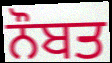
ਨੌਬਤ